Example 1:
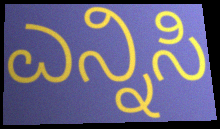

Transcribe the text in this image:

ಎನ್ನಿಸಿ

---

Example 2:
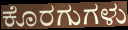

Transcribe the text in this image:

ಕೊರಗುಗಳು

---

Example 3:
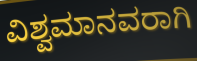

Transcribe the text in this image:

ವಿಶ್ವಮಾನವರಾಗಿ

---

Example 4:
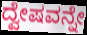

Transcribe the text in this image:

ದ್ವೇಷವನ್ನೇ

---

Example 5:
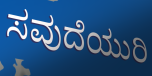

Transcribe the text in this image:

ಸವುದೆಯುರಿ